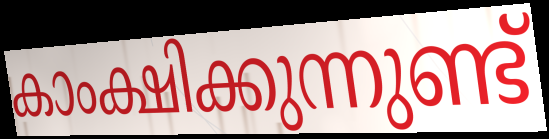
കാംക്ഷിക്കുന്നുണ്ട്